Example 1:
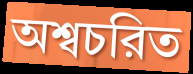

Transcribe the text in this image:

অশ্বচরিত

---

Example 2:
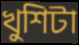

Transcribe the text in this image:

খুশিটা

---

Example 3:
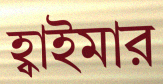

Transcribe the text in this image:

হ্বাইমার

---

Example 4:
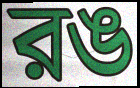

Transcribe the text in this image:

রঙ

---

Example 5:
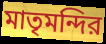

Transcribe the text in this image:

মাতৃমন্দির